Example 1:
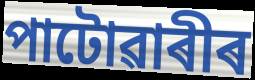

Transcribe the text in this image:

পাটোৱাৰীৰ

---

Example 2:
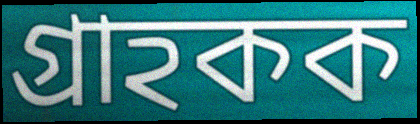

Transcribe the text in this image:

গ্ৰাহকক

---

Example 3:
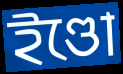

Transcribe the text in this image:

ইণ্ডো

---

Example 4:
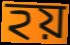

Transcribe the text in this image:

হয়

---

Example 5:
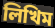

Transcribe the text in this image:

লিখিম